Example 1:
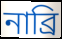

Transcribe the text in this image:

নাব্রি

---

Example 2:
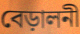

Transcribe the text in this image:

বেড়ালনী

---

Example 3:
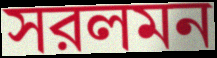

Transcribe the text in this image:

সরলমন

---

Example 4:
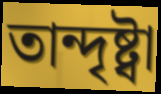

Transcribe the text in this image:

তান্দৃষ্ট্বা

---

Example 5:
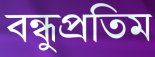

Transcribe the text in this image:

বন্ধুপ্রতিম